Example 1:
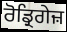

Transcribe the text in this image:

ਰੋਡ੍ਰਿਗੇਜ਼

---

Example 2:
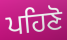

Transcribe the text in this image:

ਪਹਿਣੋ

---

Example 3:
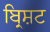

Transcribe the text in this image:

ਬ੍ਰਿਸ਼ਟ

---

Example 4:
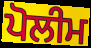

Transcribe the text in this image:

ਪੋਲੀਮ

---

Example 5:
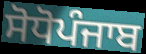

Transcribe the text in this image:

ਸੋਧੋਪੰਜਾਬ